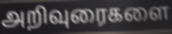
அறிவுரைகளை